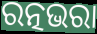
ରତ୍ନଭରା